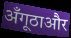
अँगूठाऔर